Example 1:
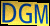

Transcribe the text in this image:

DGM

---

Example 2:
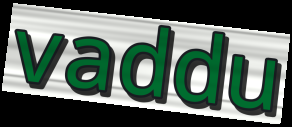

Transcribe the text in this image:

vaddu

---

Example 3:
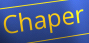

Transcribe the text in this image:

Chaper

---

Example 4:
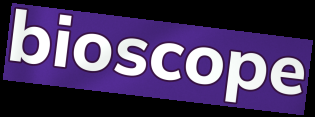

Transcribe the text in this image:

bioscope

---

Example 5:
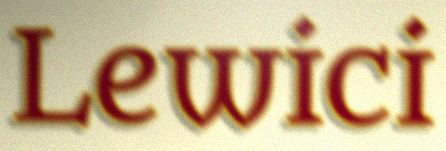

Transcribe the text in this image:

Lewici